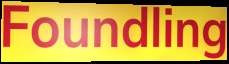
Foundling